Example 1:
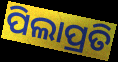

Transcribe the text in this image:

ପିଲାପ୍ରତି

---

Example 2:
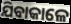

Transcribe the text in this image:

ଯିବାକାଳେ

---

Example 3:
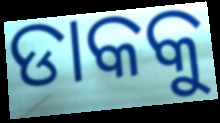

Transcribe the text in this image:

ଡାକକୁ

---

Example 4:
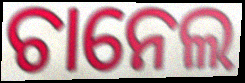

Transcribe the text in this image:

ଚାନେଲ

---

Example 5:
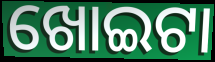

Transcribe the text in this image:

ଖୋଇଟା